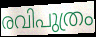
രവിപുത്രം